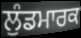
ਲੁੰਡਮਾਰਕ